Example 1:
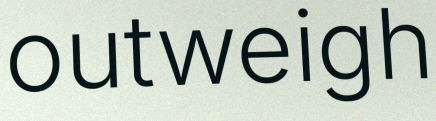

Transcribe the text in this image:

outweigh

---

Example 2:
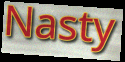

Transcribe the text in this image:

Nasty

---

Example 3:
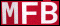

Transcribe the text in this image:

MFB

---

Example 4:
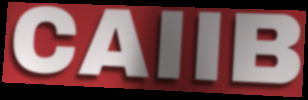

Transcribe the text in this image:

CAIIB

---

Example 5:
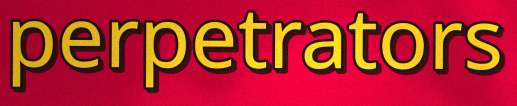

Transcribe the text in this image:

perpetrators